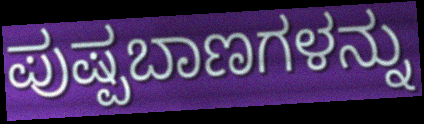
ಪುಷ್ಪಬಾಣಗಳನ್ನು